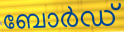
ബോർഡ്